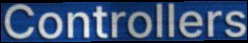
Controllers